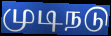
முடிநடு